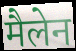
मैलेन